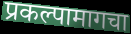
प्रकल्पामागचा